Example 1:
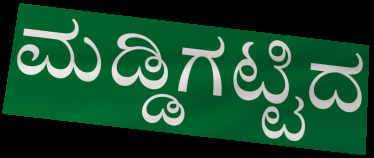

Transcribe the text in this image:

ಮಡ್ಡಿಗಟ್ಟಿದ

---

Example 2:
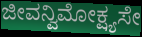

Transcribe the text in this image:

ಜೀವನ್ವಿಮೋಕ್ಷ್ಯಸೇ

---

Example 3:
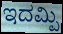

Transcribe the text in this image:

ಇದಮ್ಪಿ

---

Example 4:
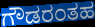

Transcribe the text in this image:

ಗೌಡರಂತಹ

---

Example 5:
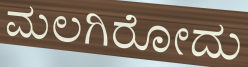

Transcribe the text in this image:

ಮಲಗಿರೋದು